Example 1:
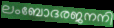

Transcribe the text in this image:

ലംബോദരജനനി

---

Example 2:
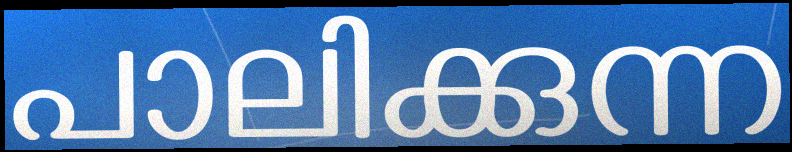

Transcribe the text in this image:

പാലിക്കുന്ന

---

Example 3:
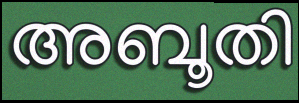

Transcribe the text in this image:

അബൂതി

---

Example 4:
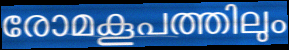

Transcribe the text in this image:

രോമകൂപത്തിലും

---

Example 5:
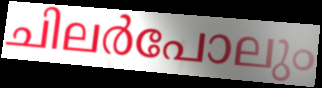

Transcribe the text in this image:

ചിലർപോലും